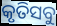
କୃତିସବୁ